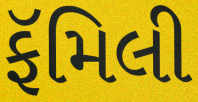
ફૅમિલી